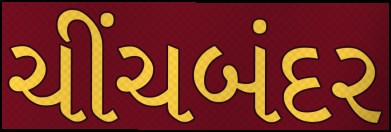
ચીંચબંદર